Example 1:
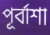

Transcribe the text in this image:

পূর্বাশা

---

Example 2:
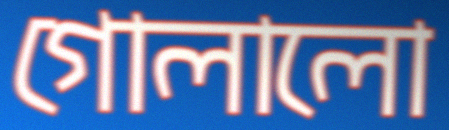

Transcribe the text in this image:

গোলালো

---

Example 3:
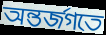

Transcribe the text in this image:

অন্তর্জগতে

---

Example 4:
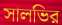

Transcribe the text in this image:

সালভির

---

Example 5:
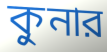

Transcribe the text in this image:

কুনার